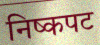
निष्कपट